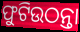
ଫୁଟିଉଠନ୍ତା